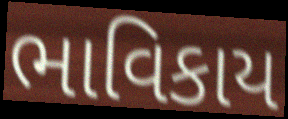
ભાવિકાય